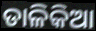
ଡାଳିକିଆ